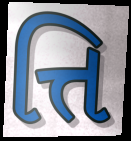
ત્તિ